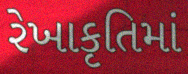
રેખાકૃતિમાં